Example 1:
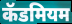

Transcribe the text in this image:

कॅडमियम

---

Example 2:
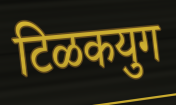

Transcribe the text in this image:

टिळकयुग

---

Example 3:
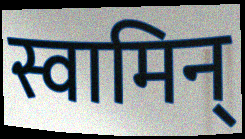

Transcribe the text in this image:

स्वामिन्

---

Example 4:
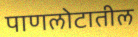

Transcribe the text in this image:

पाणलोटातील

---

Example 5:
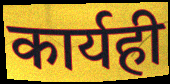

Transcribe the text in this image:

कार्यही